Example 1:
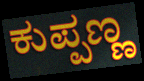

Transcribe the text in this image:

ಕುಪ್ಪಣ್ಣ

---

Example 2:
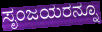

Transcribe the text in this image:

ಸೃಂಜಯರನ್ನೂ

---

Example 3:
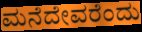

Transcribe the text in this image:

ಮನೆದೇವರೆಂದು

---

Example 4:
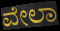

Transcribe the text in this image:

ವೇಲಾ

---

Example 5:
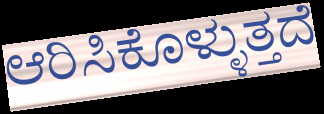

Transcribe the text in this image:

ಆರಿಸಿಕೊಳ್ಳುತ್ತದೆ